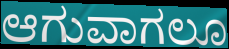
ಆಗುವಾಗಲೂ